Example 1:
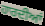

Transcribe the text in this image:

ਹਾਰਦੀਆਂ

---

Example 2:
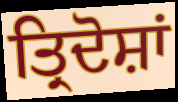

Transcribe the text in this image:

ਤ੍ਰਿਦੋਸ਼ਾਂ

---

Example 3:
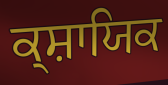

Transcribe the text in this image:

ਕ੍ਸ਼ਾਯਿਕ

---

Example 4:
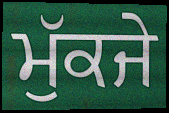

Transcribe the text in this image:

ਮੁੱਕਜੇ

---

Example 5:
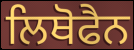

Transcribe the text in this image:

ਲਿਥੋਫੈਨ